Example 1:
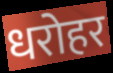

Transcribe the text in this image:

धरोहर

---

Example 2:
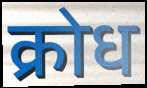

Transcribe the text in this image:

क्रोध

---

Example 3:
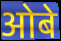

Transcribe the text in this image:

ओबे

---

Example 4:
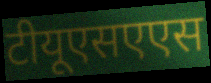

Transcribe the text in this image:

टीयूएसएएस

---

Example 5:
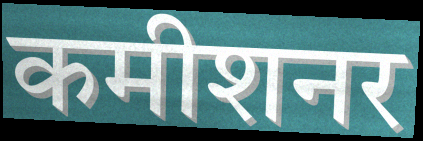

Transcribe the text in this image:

कमीशनर